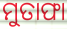
ମୁତାଫା